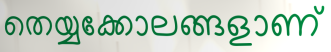
തെയ്യക്കോലങ്ങളാണ്